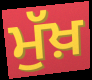
ਮੁੱਖ਼